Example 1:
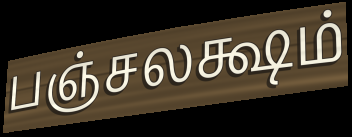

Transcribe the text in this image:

பஞ்சலக்ஷம்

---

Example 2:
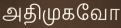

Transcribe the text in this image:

அதிமுகவோ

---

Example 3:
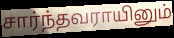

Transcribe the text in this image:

சார்ந்தவராயினும்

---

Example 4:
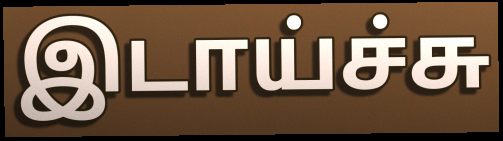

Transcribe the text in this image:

இடாய்ச்சு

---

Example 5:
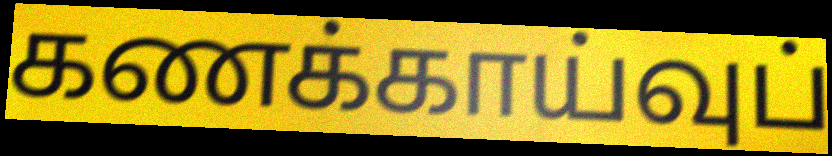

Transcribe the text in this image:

கணக்காய்வுப்